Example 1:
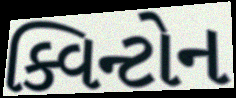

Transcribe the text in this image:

ક્વિન્ટોન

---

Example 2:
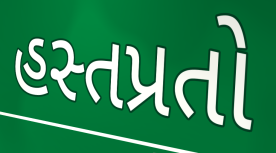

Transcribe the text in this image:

હસ્તપ્રતો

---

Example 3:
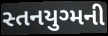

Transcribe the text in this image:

સ્તનયુગ્મની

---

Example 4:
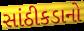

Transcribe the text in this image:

સાંઠીકડાનો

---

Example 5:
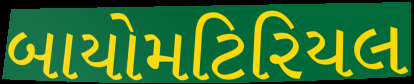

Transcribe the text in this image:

બાયોમટિરિયલ